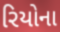
રિયોના